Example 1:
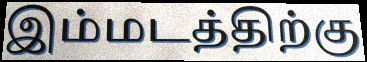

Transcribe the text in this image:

இம்மடத்திற்கு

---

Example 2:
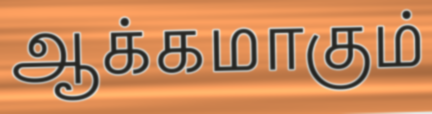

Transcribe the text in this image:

ஆக்கமாகும்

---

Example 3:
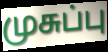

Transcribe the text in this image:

முசுப்பு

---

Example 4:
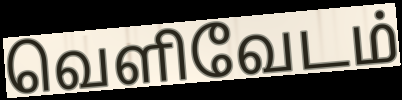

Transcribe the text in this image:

வெளிவேடம்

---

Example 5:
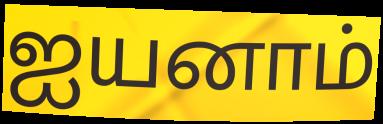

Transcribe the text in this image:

ஐயனாம்